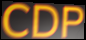
CDP